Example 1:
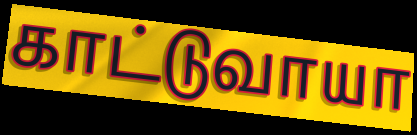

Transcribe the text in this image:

காட்டுவாயா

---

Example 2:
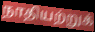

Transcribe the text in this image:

நாதியற்றுக்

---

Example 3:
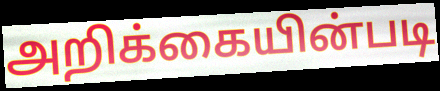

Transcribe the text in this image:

அறிக்கையின்படி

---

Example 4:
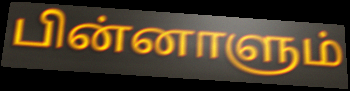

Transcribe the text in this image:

பின்னாளும்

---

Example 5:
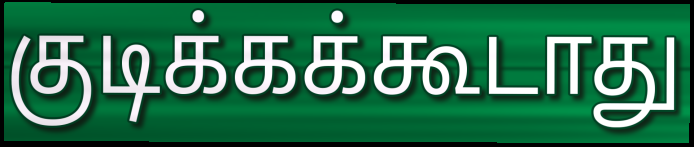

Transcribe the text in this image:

குடிக்கக்கூடாது